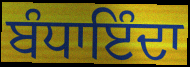
ਬੰਧਾਇੰਦਾ